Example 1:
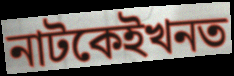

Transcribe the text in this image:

নাটকেইখনত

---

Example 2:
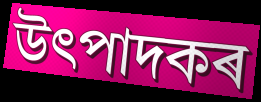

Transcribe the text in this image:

উৎপাদকৰ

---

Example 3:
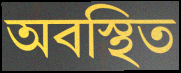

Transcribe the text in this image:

অবস্থিত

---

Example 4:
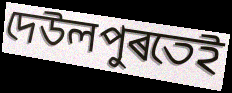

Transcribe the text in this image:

দেউলপুৰতেই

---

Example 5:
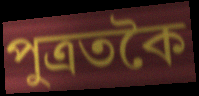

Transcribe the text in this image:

পুত্ৰতকৈ